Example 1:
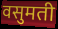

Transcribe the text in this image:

वसुमती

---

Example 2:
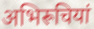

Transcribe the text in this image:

अभिरूचियां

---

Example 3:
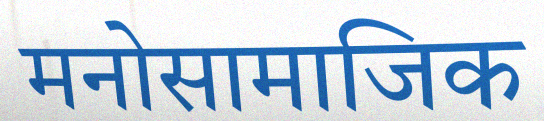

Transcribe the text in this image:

मनोसामाजिक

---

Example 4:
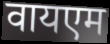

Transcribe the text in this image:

वायएम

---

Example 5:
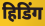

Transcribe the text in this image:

हिडिंग